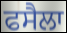
ਫਸੈਲਾ